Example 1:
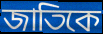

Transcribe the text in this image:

জাতিকে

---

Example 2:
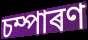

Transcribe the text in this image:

চম্পাৰণ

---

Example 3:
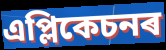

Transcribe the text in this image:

এপ্লিকেচনৰ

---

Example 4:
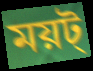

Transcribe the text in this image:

ময়ট্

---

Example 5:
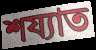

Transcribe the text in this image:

শয্যাত